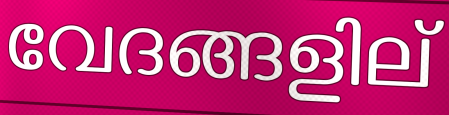
വേദങ്ങളില്